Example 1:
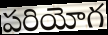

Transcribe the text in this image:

పరియోగ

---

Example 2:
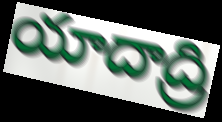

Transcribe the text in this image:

యాదాద్రి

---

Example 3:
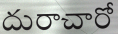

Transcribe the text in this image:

దురాచారో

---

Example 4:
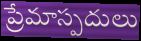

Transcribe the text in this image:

ప్రేమాస్పదులు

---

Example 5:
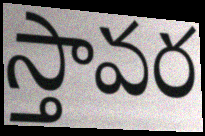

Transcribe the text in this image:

స్తావర